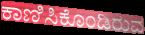
ಕಾಣಿಸಿಕೊಂಡಿರುವ